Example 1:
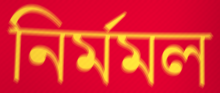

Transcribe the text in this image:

নির্মমল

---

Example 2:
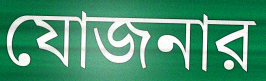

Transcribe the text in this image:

যোজনার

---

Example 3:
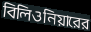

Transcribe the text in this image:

বিলিওনিয়ারের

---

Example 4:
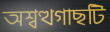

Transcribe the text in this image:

অশ্বত্থগাছটি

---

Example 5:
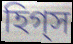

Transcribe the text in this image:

হিগ্স